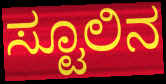
ಸ್ಟೂಲಿನ